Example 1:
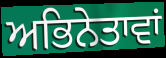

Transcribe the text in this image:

ਅਭਿਨੇਤਾਵਾਂ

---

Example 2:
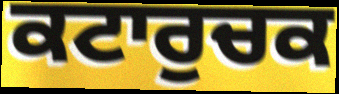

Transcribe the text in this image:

ਕਟਾਰੁਚਕ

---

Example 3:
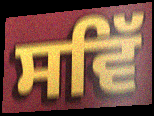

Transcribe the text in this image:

ਸਵਿੱ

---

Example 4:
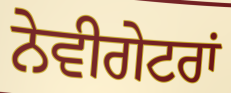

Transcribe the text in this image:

ਨੇਵੀਗੇਟਰਾਂ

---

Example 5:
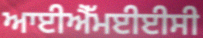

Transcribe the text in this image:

ਆਈਐੱਮਈਈਸੀ